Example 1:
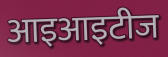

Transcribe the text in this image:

आइआइटीज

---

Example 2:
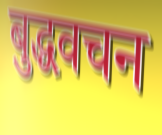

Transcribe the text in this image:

बुद्धवचन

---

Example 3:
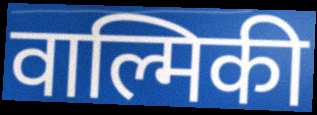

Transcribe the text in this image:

वाल्मिकी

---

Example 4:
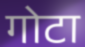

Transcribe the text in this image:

गोटा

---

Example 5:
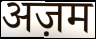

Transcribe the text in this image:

अज़म